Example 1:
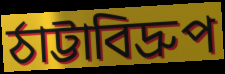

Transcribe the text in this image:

ঠাট্টাবিদ্রুপ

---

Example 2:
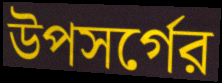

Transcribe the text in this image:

উপসর্গের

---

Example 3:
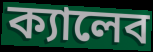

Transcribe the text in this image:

ক্যালেব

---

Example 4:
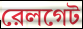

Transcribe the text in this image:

রেলগেট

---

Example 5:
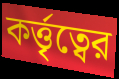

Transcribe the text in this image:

কর্ত্তৃত্বের